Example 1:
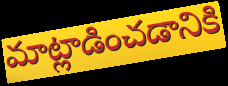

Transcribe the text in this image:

మాట్లాడించడానికి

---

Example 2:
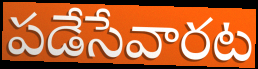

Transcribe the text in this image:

పడేసేవారట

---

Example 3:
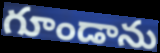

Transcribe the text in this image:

గూండాను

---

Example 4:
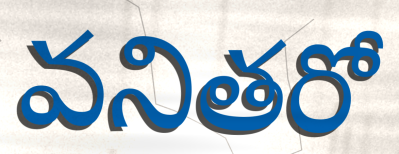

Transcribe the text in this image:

వనితరో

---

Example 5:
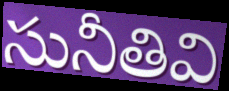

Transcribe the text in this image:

సునీతివి